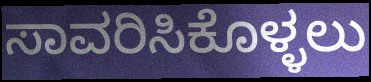
ಸಾವರಿಸಿಕೊಳ್ಳಲು